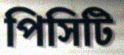
পিসিটি